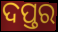
ଦପ୍ତର